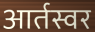
आर्तस्वर